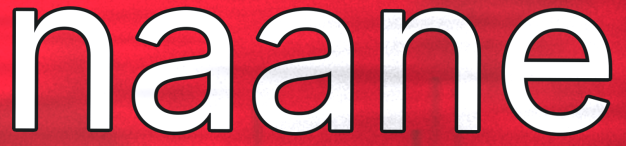
naane